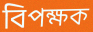
বিপক্ষক